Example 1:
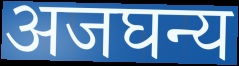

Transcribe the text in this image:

अजघन्य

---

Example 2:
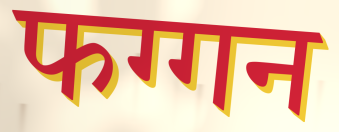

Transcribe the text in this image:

फग्गन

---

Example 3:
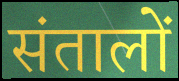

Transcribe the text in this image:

संतालों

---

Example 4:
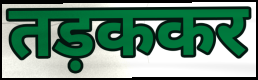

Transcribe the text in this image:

तड़ककर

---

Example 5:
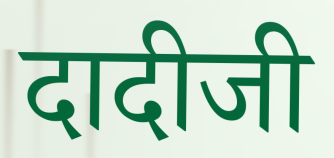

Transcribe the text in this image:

दादीजी